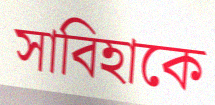
সাবিহাকে